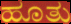
ಹೂತು